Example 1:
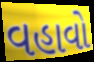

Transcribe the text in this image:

વહાવો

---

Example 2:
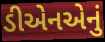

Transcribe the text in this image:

ડીએનએનું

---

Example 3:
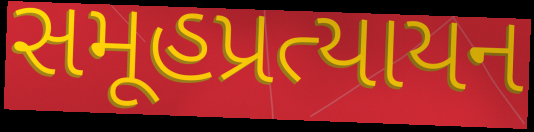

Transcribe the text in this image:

સમૂહપ્રત્યાયન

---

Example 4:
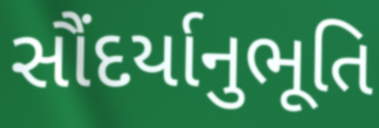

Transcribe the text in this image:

સૌંદર્યાનુભૂતિ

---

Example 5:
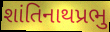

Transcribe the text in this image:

શાંતિનાથપ્રભુ